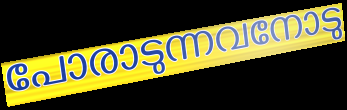
പോരാടുന്നവനോടു